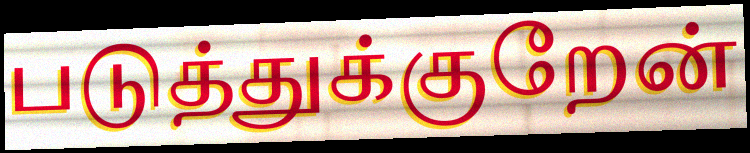
படுத்துக்குறேன்